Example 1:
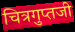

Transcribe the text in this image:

चित्रगुप्तजी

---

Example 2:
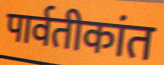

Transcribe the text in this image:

पार्वतीकांत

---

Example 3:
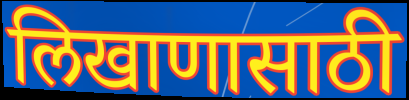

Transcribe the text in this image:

लिखाणासाठी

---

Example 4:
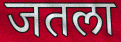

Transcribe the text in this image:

जतला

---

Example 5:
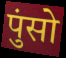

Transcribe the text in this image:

पुंसो